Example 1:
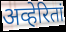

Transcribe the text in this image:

अव्हेरितां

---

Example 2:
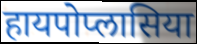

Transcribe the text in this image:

हायपोप्लासिया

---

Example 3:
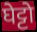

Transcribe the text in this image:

घेट्टो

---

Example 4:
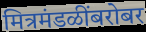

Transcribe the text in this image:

मित्रमंडळींबरोबर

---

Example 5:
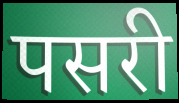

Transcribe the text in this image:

पसरी